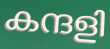
കന്ദളി